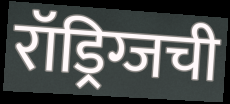
रॉड्रिग्जची